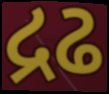
દ્રઢ